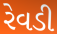
રેવડી